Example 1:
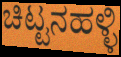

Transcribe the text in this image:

ಚಿಟ್ಟನಹಳ್ಳಿ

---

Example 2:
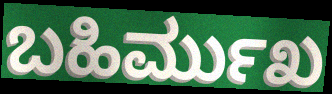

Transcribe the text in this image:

ಬಹಿರ್ಮುಖ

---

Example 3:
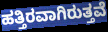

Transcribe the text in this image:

ಹತ್ತಿರವಾಗಿರುತ್ತವೆ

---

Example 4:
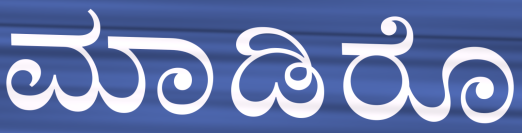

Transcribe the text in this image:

ಮಾಡಿರೊ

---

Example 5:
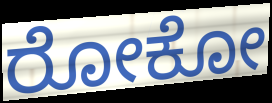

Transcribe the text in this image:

ರೋಕೋ